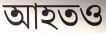
আহতও